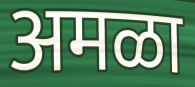
अमळा